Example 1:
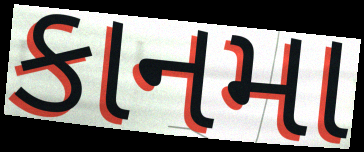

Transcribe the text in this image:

કાનમા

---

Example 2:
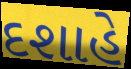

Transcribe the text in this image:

દશાહે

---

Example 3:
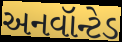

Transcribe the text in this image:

અનવૉન્ટેડ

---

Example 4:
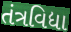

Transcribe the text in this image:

તંત્રવિદ્યા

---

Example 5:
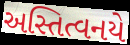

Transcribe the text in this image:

અસ્તિત્વનયે